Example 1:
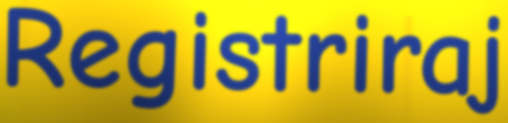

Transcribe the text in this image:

Registriraj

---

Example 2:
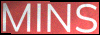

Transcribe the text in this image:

MINS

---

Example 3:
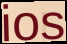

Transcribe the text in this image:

ios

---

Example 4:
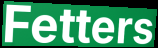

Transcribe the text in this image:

Fetters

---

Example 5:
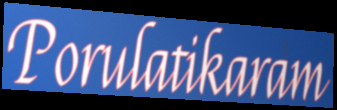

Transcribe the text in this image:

Porulatikaram